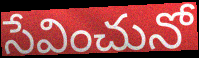
సేవించునో